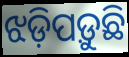
ଝଡ଼ିପଡ଼ୁଛି